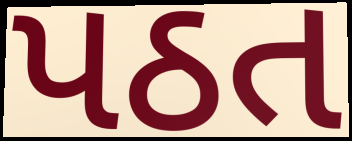
પઠત